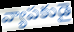
వ్యాపకుడై